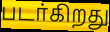
படர்கிறது